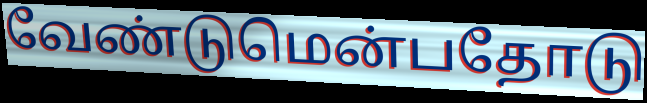
வேண்டுமென்பதோடு